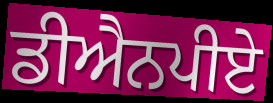
ਡੀਐਨਪੀਏ